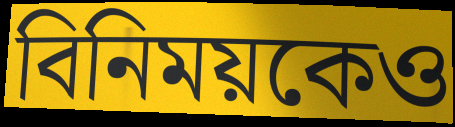
বিনিময়কেও